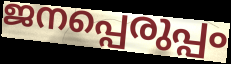
ജനപ്പെരുപ്പം